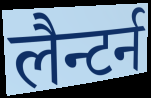
लैन्टर्न